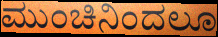
ಮುಂಚಿನಿಂದಲೂ